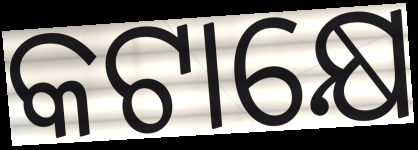
କଟାକ୍ଷେ